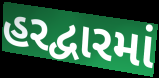
હરદ્વારમાં